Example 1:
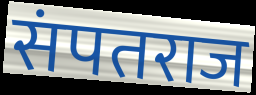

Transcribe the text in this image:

संपतराज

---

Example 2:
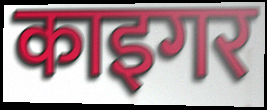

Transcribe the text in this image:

काइगर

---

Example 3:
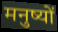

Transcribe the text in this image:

मनुष्यों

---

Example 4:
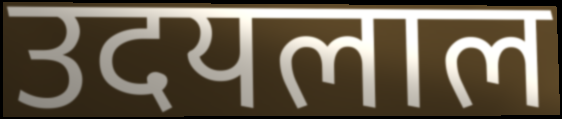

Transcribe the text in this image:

उदयलाल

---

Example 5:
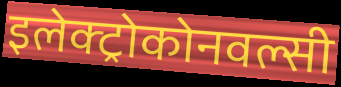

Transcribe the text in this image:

इलेक्ट्रोकोनवल्सी